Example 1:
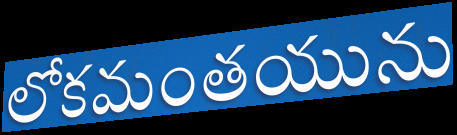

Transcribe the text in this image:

లోకమంతయును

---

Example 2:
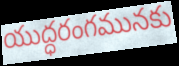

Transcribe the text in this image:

యుద్ధరంగమునకు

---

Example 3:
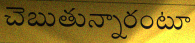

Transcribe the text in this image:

చెబుతున్నారంటూ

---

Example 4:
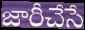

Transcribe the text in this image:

జారీచేసే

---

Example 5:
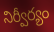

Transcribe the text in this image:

నిర్వీర్యం